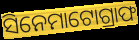
ସିନେମାଟୋଗ୍ରାଫ